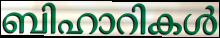
ബിഹാറികൾ